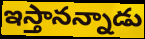
ఇస్తానన్నాడు